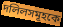
দলিলসমূহকে